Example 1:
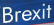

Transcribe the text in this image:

Brexit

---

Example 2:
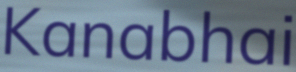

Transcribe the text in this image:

Kanabhai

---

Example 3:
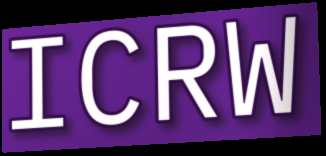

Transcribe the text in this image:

ICRW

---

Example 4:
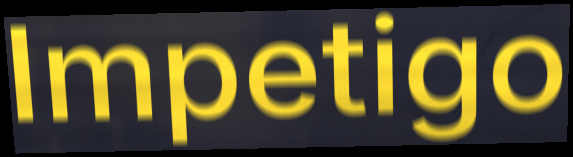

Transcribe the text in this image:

Impetigo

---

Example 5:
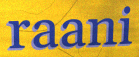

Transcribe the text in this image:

raani